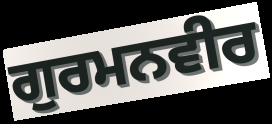
ਗੁਰਮਨਵੀਰ